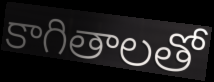
కాగితాలతో